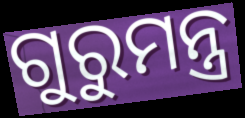
ଗୁରୁମନ୍ତ୍ର